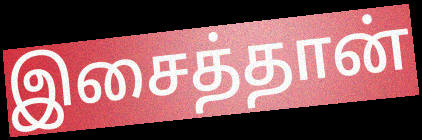
இசைத்தான்